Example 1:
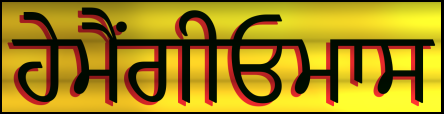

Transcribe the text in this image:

ਹੇਮੈਂਗੀਓਮਾਸ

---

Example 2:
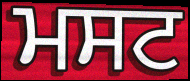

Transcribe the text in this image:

ਮਸਟ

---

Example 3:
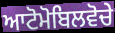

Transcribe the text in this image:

ਆਟੋਮੋਬਿਲਵੋਚੇ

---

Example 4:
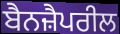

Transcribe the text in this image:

ਬੈਨਜ਼ੈਪਰੀਲ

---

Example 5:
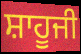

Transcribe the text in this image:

ਸ਼ਾਹੂਜੀ